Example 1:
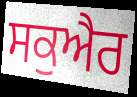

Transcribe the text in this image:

ਸਕੁਐਰ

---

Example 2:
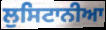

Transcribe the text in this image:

ਲੁਸਿਟਾਨੀਆ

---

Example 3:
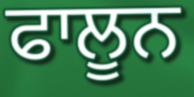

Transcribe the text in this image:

ਫਾਲੂਨ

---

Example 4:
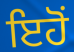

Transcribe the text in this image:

ਇਹੋਂ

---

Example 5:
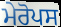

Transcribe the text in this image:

ਮੇਰੋਪਸ